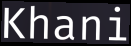
Khani